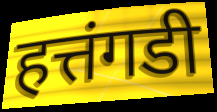
हत्तंगडी